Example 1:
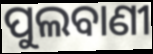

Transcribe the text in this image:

ପୁଲବାଣୀ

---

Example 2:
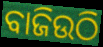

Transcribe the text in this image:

ବାଜିଉଠି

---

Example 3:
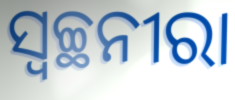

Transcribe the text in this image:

ସ୍ୱଚ୍ଛନୀରା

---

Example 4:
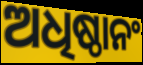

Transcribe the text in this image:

ଅଧିଷ୍ଠାନଂ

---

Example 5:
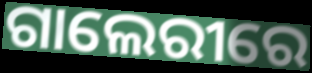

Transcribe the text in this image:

ଗାଲେରୀରେ